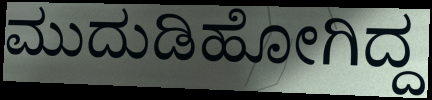
ಮುದುಡಿಹೋಗಿದ್ದ